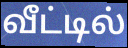
வீட்டில்